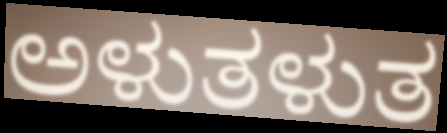
ಅಳುತಳುತ